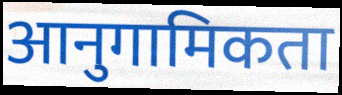
आनुगामिकता